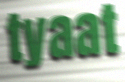
tyaat